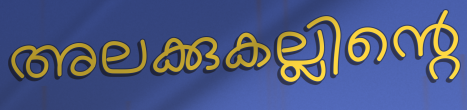
അലക്കുകല്ലിന്റെ